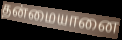
தன்மையானை